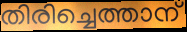
തിരിച്ചെത്താന്